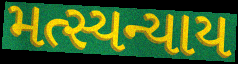
મત્સ્યન્યાય